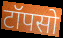
टॉपसो